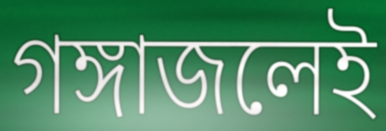
গঙ্গাজলেই